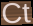
Ct